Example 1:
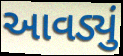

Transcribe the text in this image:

આવડ્યું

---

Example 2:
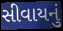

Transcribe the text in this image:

સીવાયનું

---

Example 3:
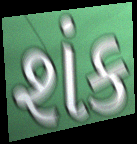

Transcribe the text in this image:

શંક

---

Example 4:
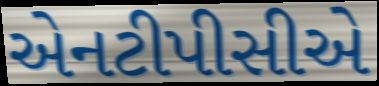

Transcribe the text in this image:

એનટીપીસીએ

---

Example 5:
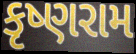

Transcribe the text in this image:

કૃષ્ણરામ